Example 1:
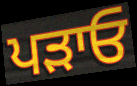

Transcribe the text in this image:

ਪੜਾਓ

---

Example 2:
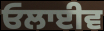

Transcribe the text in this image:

ਓਲਾਈਵ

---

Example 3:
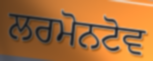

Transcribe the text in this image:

ਲਰਮੋਨਟੋਵ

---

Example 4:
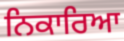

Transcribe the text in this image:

ਨਿਕਾਰਿਆ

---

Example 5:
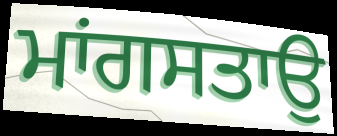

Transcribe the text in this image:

ਮਾਂਗਸਤਾਉ